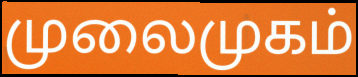
முலைமுகம்